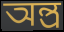
অন্ত্র